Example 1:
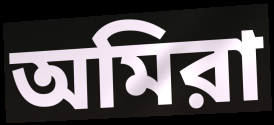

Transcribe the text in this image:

অমিরা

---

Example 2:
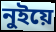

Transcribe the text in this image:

নুইয়ে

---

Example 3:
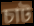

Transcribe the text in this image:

চাট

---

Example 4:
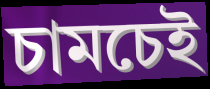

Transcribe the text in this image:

চামচেই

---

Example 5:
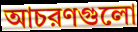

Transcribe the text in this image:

আচরণগুলো